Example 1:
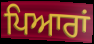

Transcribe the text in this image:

ਪਿਆਰਾਂ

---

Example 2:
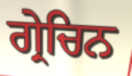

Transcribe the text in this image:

ਗ੍ਰੇਚਿਨ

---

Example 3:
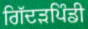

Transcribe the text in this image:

ਗਿੱਦੜਪਿੰਡੀ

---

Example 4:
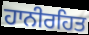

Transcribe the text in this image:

ਹਾਨੀਰਹਿਤ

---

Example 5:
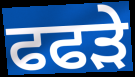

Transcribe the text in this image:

ਫਫਡ਼ੇ